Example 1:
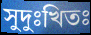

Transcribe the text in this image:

সুদুঃখিতঃ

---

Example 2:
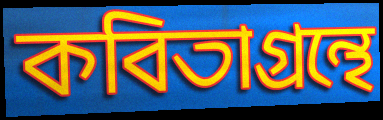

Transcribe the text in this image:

কবিতাগ্রন্থে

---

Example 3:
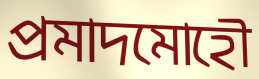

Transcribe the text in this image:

প্রমাদমোহৌ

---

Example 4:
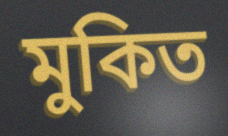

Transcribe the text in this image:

মুকিত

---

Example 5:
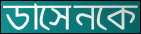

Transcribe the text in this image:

ডাসেনকে